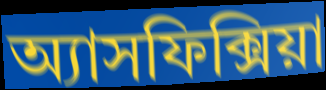
অ্যাসফিক্সিয়া